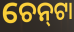
ଚେନ୍‌ଟା